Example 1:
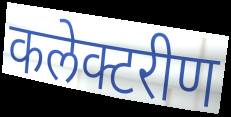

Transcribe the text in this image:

कलेक्टरीण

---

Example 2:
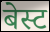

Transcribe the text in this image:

बेस्ट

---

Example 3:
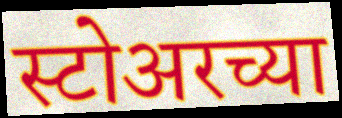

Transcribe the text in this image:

स्टोअरच्या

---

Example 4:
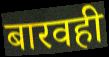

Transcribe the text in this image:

बारवही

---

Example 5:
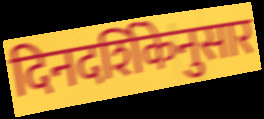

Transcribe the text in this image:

दिनदर्शिकेनुसार